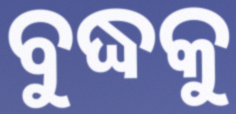
ବୁଦ୍ଧକୁ